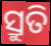
ସ୍ରୁତି